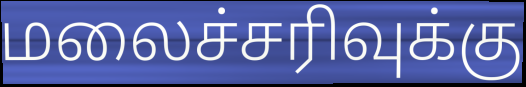
மலைச்சரிவுக்கு